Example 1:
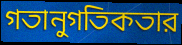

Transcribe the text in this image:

গতানুগতিকতার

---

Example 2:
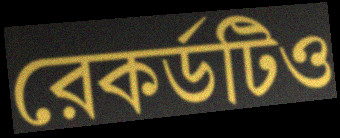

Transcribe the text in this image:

রেকর্ডটিও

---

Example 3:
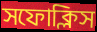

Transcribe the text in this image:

সফোক্লিস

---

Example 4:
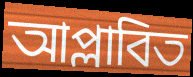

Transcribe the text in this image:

আপ্লাবিত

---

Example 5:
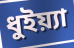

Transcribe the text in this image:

ধুইয়্যা